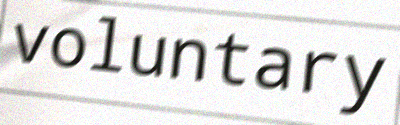
voluntary